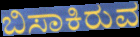
ಬಿಸಾಕಿರುವ